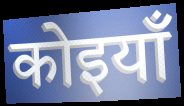
कोइयाँ